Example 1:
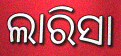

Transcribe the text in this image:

ଲାରିସା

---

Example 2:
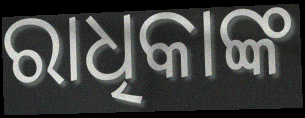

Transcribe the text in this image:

ରାଧିକାଙ୍କ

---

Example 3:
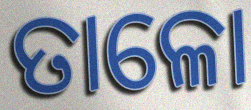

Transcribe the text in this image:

ତାଳୋ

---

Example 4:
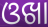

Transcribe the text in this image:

ଓଖା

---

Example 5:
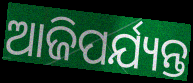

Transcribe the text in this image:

ଆଜିପର୍ଯ୍ୟନ୍ତ